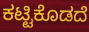
ಕಟ್ಟಿಕೊಡದೆ